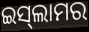
ଇସ୍‍ଲାମର